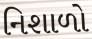
નિશાળો